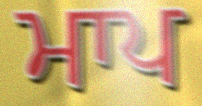
ਮਾਪ